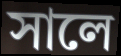
সালে